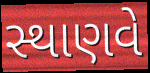
સ્થાણવે